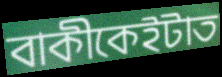
বাকীকেইটাত